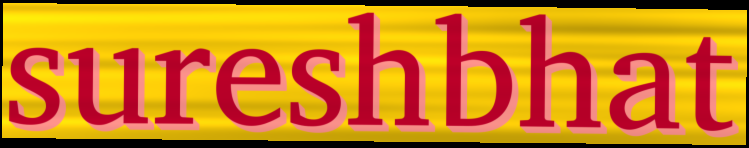
sureshbhat